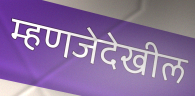
म्हणजेदेखील